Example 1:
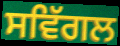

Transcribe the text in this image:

ਸਵਿੱਗਲ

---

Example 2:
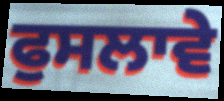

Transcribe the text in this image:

ਫੁਸਲਾਵੇ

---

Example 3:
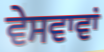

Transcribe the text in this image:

ਵੇਸਵਾਵਾਂ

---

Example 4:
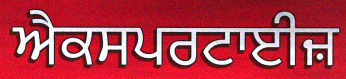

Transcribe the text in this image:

ਐਕਸਪਰਟਾਈਜ਼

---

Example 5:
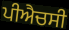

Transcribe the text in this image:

ਪੀਐਚਸੀ